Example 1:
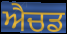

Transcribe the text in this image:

ਐਚਡ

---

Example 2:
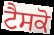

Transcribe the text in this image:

ਟੈਸਕੋ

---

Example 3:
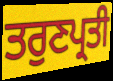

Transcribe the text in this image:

ਤਰੁਣਪ੍ਰਤੀ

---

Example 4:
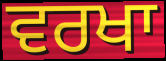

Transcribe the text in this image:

ਵਰਖਾ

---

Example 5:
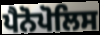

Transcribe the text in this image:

ਪੈਨੋਪੋਲਿਸ